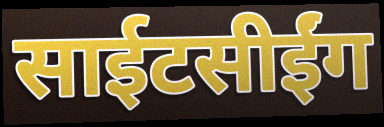
साईटसीईंग